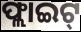
ଫ୍ଲାଇଟ୍